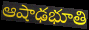
ఆషాఢభూతి